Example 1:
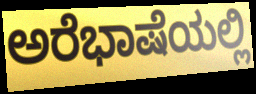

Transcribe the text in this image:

ಅರೆಭಾಷೆಯಲ್ಲಿ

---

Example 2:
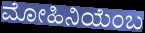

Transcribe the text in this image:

ಮೋಹಿನಿಯೆಂಬ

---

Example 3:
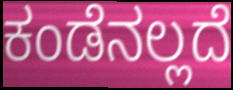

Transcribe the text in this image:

ಕಂಡೆನಲ್ಲದೆ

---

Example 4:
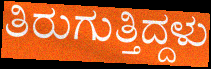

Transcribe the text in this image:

ತಿರುಗುತ್ತಿದ್ದಳು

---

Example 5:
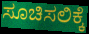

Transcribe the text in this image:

ಸೂಚಿಸಲಿಕ್ಕೆ